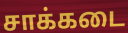
சாக்கடை